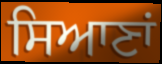
ਸਿਆਣਾਂ